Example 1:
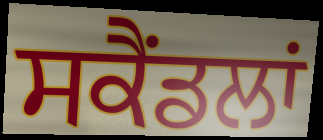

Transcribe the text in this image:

ਸਕੈਂਡਲਾਂ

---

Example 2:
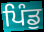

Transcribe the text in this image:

ਪਿੰਡੁ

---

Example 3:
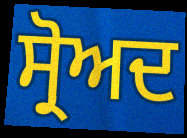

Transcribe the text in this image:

ਸ੍ਰੋਅਦ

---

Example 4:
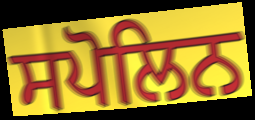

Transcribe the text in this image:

ਸਪੋਲਿਨ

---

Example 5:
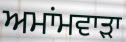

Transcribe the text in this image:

ਅਮਾਂਮਵਾੜਾ